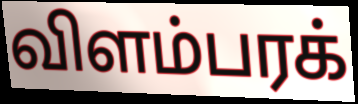
விளம்பரக்